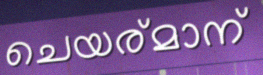
ചെയര്മാന്